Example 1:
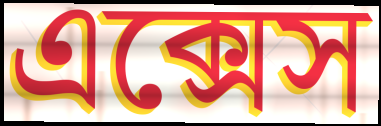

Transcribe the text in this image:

এক্সেস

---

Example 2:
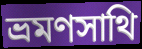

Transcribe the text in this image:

ভ্রমণসাথি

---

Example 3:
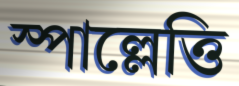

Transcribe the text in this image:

স্পাল্লেত্তি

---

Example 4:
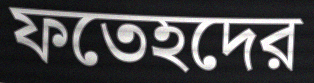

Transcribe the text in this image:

ফতেহদের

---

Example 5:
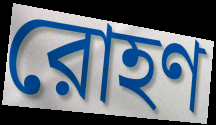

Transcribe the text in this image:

রোহণ